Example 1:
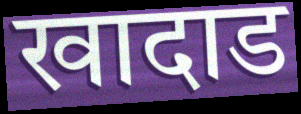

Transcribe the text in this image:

खादाड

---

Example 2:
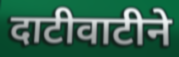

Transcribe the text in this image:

दाटीवाटीने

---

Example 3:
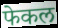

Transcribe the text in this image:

फेकल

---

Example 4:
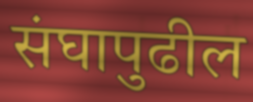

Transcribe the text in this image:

संघापुढील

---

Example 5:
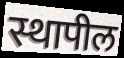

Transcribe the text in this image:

स्थापील